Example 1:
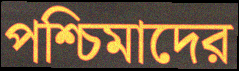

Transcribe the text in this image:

পশ্চিমাদের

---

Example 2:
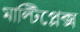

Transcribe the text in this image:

মাল্টিপ্লেক্স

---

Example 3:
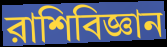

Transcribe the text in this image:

রাশিবিজ্ঞান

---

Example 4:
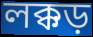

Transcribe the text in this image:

লক্কড়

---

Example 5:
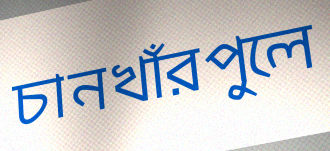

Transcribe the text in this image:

চানখাঁরপুলে